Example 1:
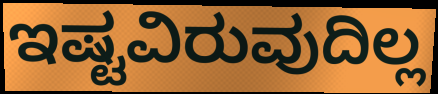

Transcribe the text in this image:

ಇಷ್ಟವಿರುವುದಿಲ್ಲ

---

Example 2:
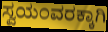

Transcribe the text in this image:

ಸ್ವಯಂವರಕ್ಕಾಗಿ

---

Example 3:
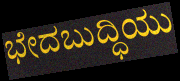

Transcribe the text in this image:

ಭೇದಬುದ್ಧಿಯು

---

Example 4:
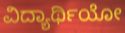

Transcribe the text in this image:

ವಿದ್ಯಾರ್ಥಿಯೋ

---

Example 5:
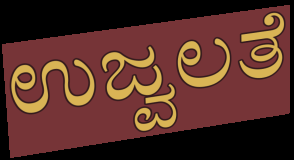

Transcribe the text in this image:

ಉಜ್ವಲತೆ